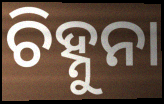
ଚିହ୍ନୁନା